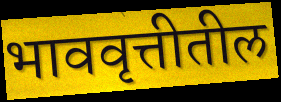
भाववृत्तीतील